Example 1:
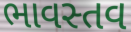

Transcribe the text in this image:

ભાવસ્તવ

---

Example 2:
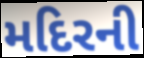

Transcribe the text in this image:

મદિરની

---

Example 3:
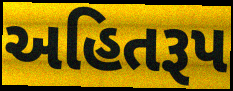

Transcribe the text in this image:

અહિતરૂપ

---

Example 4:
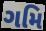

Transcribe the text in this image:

ગમિ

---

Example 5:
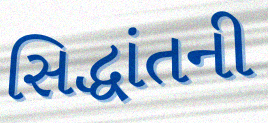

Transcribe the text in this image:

સિદ્ધાંતની